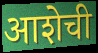
आशेची